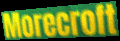
Morecroft